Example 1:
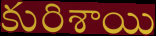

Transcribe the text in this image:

కురిశాయి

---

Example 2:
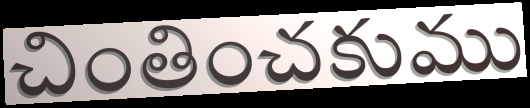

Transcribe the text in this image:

చింతించకుము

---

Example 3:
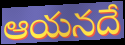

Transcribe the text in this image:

ఆయనదే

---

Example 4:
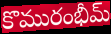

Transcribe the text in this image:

కొమురంభీమ్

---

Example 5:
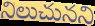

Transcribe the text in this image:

నిలుచునని